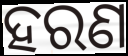
ହରଣ